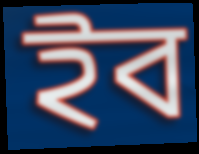
ইব